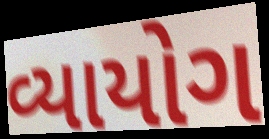
વ્યાયોગ